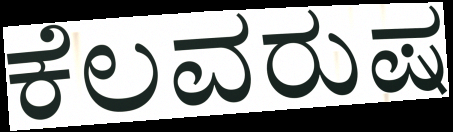
ಕೆಲವರುಷ